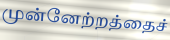
முன்னேற்றத்தைச்